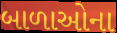
બાળાઓના